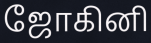
ஜோகினி